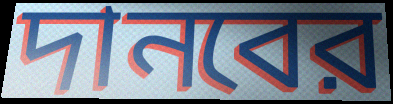
দানবের